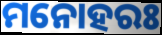
ମନୋହରଃ